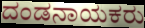
ದಂಡನಾಯಕರು